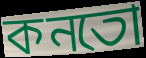
কনতো